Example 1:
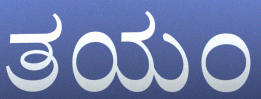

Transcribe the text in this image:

ತಯಂ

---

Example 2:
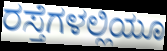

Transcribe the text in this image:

ರಸ್ತೆಗಳಲ್ಲಿಯೂ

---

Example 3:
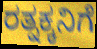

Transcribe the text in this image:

ರತ್ನಕ್ಕನಿಗೆ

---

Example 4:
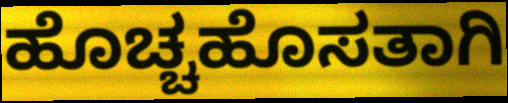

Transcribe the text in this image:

ಹೊಚ್ಚಹೊಸತಾಗಿ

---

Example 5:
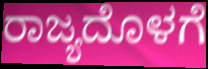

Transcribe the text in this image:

ರಾಜ್ಯದೊಳಗೆ